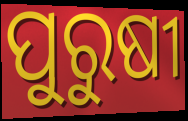
ପୁରୁଷୀ